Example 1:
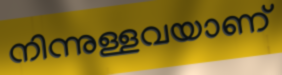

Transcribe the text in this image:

നിന്നുള്ളവയാണ്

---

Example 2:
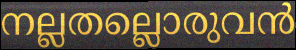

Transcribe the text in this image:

നല്ലതല്ലൊരുവൻ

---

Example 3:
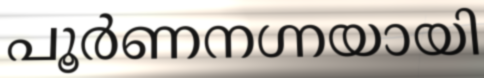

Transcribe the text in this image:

പൂർണനഗ്നയായി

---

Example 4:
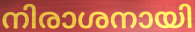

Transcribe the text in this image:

നിരാശനായി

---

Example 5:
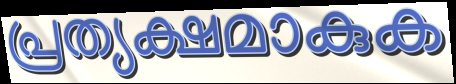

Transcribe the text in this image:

പ്രത്യക്ഷമാകുക